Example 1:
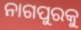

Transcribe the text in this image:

ନାଗପୁରକୁ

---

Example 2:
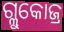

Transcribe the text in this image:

ଗ୍ଲୁକୋଜ୍ର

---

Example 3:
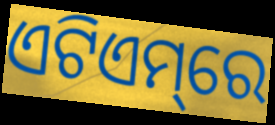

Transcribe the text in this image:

ଏଟିଏମ୍‌ରେ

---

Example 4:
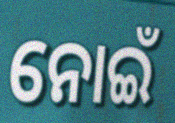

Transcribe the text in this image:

ନୋଇଁ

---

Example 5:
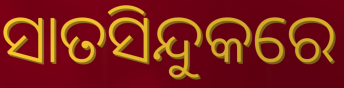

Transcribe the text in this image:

ସାତସିନ୍ଦୁକରେ